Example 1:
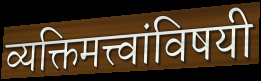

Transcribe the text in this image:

व्यक्तिमत्त्वांविषयी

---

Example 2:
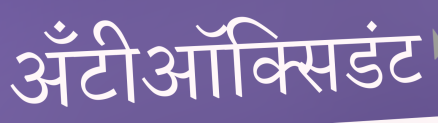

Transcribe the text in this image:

अँटीऑक्सिडंट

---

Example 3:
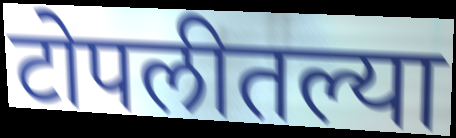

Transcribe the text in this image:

टोपलीतल्या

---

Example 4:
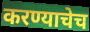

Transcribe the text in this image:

करण्याचेच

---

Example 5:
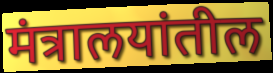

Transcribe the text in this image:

मंत्रालयांतील